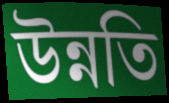
উন্নতি